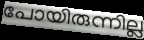
പോയിരുന്നില്ല